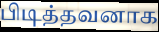
பிடித்தவனாக